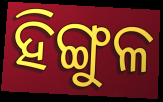
ହିଙ୍ଗୁଳ